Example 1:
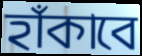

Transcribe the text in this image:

হাঁকাবে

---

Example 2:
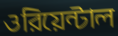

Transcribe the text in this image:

ওরিয়েন্টাল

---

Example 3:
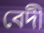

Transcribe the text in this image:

বেদী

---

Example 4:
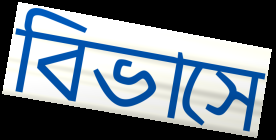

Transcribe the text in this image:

বিভাসে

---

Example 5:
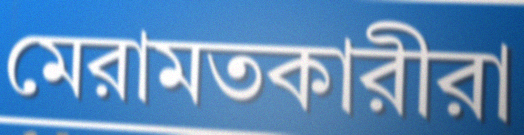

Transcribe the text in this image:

মেরামতকারীরা